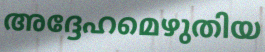
അദ്ദേഹമെഴുതിയ